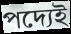
পদ্যেই